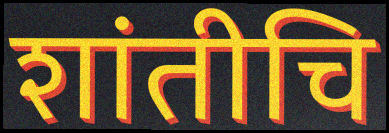
शांतीचि